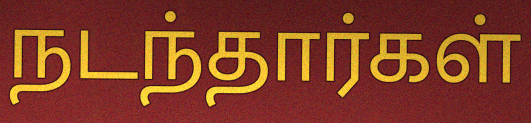
நடந்தார்கள்